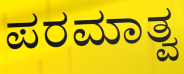
ಪರಮಾತ್ವ